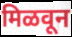
मिळवून